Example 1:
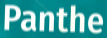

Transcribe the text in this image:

Panthe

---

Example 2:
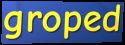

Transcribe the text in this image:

groped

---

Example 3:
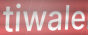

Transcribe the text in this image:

tiwale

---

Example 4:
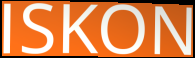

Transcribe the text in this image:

ISKON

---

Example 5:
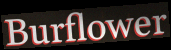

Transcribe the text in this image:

Burflower